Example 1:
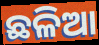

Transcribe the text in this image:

ଛଳିଆ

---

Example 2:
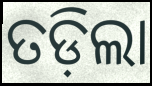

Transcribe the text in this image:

ତଡ଼ିଲା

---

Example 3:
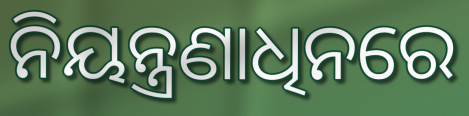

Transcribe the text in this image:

ନିୟନ୍ତ୍ରଣାଧିନରେ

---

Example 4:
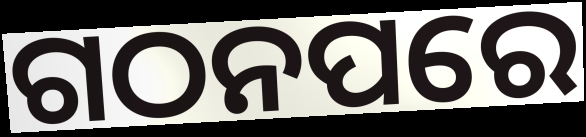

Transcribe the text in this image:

ଗଠନପରେ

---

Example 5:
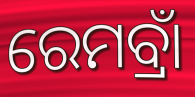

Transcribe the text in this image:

ରେମବ୍ରାଁ